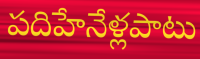
పదిహేనేళ్లపాటు